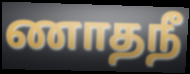
ணாதநீ